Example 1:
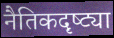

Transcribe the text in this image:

नैतिकदृष्ट्या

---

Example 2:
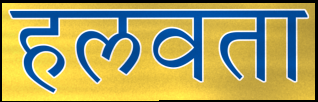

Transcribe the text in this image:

हलवता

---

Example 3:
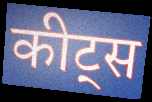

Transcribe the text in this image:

कीट्‌स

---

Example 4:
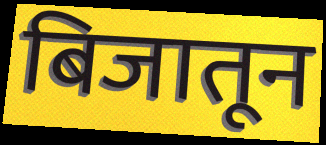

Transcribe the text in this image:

बिजातून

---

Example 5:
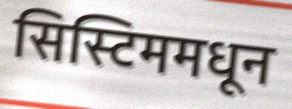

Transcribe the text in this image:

सिस्टिममधून